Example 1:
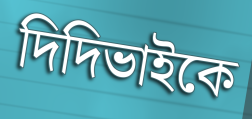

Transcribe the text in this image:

দিদিভাইকে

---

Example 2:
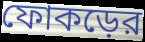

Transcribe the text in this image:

ফোকড়ের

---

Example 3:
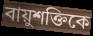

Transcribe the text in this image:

বায়ুশক্তিকে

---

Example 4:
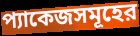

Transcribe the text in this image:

প্যাকেজসমূহের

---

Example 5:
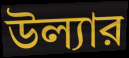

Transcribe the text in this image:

উল্যার